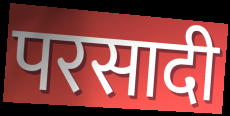
परसादी